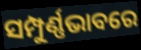
ସମ୍ପୁର୍ଣ୍ଣଭାବରେ